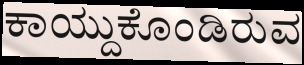
ಕಾಯ್ದುಕೊಂಡಿರುವ